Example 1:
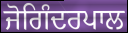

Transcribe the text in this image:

ਜੋਗਿੰਦਰਪਾਲ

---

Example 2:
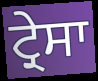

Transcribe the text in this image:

ਟ੍ਰੇਸਾ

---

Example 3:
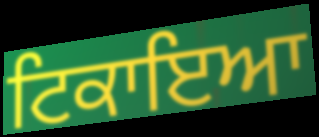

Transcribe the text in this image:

ਟਿਕਾਇਆ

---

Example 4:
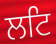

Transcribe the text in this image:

ਲਟਿ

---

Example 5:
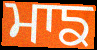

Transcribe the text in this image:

ਮਾਙ